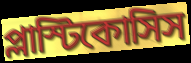
প্লাস্টিকোসিস